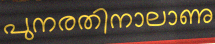
പുനരതിനാലാണു